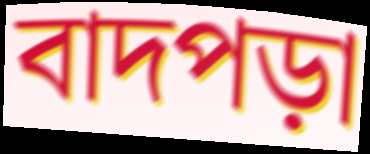
বাদপড়া